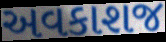
અવકાશજ